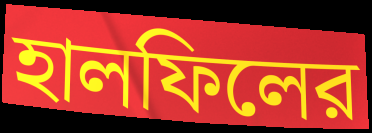
হালফিলের